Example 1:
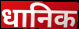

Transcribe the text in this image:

धानिक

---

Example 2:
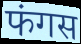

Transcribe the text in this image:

फंगस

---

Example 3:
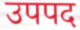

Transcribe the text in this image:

उपपद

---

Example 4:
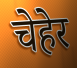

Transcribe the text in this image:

चेहेर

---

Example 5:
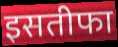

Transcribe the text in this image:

इसतीफा